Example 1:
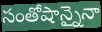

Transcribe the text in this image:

సంతోషాన్నైనా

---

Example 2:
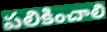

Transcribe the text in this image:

పలికించాలి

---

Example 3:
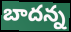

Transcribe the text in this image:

బాదన్న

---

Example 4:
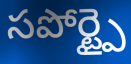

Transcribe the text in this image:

సపోర్ట్పై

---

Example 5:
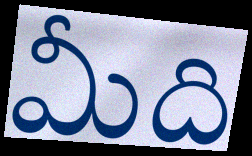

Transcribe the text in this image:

మీది